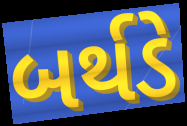
બર્થડે